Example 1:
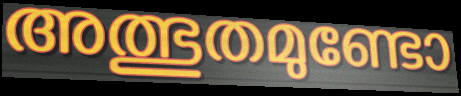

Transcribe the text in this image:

അത്ഭുതമുണ്ടോ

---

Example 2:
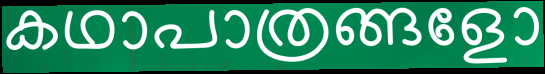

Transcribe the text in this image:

കഥാപാത്രങ്ങളോ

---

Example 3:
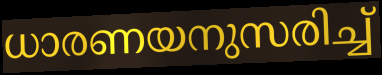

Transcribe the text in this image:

ധാരണയനുസരിച്ച്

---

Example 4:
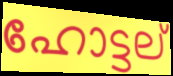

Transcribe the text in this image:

ഹോട്ടല്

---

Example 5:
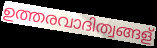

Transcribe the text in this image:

ഉത്തരവാദിത്വങ്ങള്